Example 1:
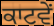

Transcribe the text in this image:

ਕਾਟਵੇਂ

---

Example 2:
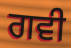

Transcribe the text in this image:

ਗਵੀ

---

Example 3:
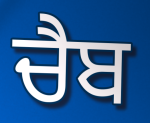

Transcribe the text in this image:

ਚੈਬ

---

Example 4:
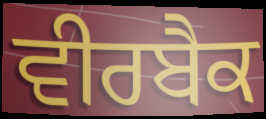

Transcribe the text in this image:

ਵੀਰਬੈਕ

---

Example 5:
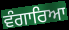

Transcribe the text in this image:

ਵੰਗਾਰਿਆ